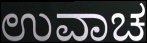
ಉವಾಚ